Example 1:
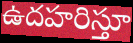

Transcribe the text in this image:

ఉదహరిస్తూ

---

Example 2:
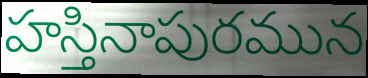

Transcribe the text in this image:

హస్తినాపురమున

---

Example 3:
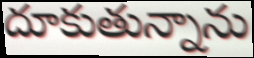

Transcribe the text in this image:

దూకుతున్నాను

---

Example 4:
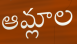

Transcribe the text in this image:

ఆమ్లాల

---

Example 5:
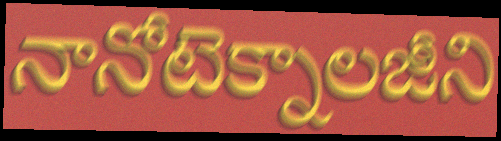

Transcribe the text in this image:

నానోటెక్నాలజీని